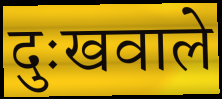
दुःखवाले